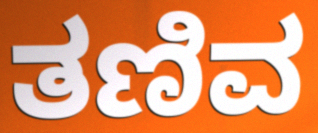
ತಣಿವ